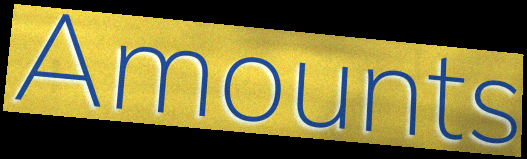
Amounts